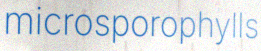
microsporophylls